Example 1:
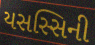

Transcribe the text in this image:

યસસ્સિની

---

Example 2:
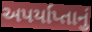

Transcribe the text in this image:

અપર્યાપ્તાનું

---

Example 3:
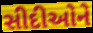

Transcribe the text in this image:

સીદીઓને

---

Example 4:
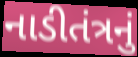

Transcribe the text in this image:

નાડીતંત્રનું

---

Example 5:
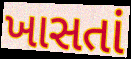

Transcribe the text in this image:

ખાસતાં